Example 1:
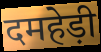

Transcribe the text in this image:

दमहेड़ी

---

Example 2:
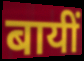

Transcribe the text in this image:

बायीं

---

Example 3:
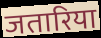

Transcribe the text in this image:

जतारिया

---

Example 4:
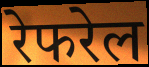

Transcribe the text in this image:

रेफरेल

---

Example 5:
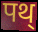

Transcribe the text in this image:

पथ्